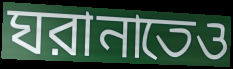
ঘরানাতেও